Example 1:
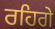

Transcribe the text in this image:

ਰਹਿਗੇ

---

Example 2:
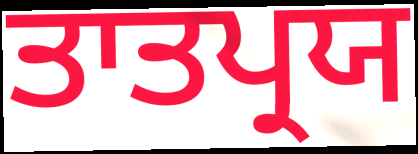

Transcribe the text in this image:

ਤਾਤਪ੍ਰਯ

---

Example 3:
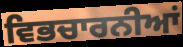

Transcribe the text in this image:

ਵਿਭਚਾਰਨੀਆਂ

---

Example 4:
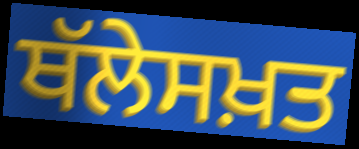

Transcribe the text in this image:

ਥੱਲੇਸਖ਼ਤ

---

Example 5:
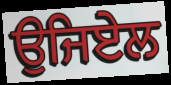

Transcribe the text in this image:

ਉਜਿਏਲ